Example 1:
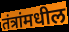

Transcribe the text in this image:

तंत्रांमधील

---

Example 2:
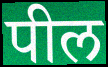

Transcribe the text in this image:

पील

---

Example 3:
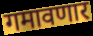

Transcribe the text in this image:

गमावणार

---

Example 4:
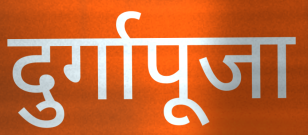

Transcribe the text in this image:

दुर्गापूजा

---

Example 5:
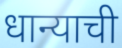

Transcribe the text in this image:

धान्याची